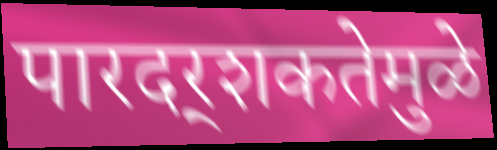
पारदर्शकतेमुळे